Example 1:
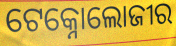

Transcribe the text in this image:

ଟେକ୍ନୋଲୋଜୀର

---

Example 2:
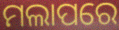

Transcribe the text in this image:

ମଲାପରେ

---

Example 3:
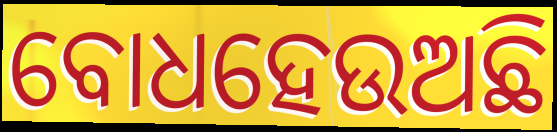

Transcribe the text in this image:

ବୋଧହେଉଅଛି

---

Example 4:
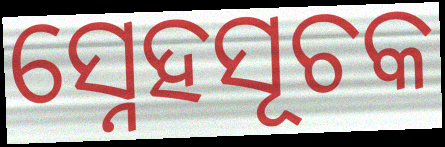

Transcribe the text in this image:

ସ୍ନେହସୂଚକ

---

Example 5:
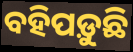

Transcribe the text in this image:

ବହିପଡ଼ୁଛି